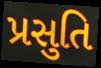
પ્રસુતિ